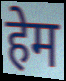
हेम